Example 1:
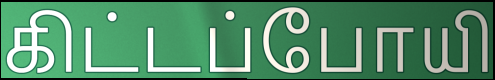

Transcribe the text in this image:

கிட்டப்போயி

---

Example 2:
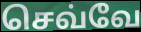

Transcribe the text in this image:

செவ்வே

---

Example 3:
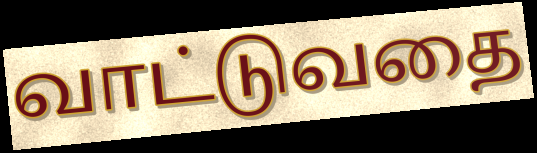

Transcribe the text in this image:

வாட்டுவதை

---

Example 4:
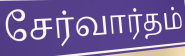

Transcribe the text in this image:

சேர்வார்தம்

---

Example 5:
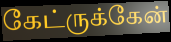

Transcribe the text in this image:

கேட்ருக்கேன்